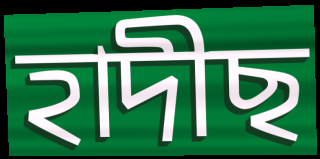
হাদীছ